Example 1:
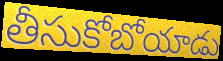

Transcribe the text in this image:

తీసుకోబోయాడు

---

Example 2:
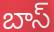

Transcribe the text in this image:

బాస్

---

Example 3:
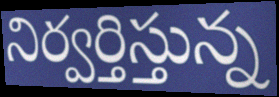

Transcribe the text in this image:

నిర్వర్తిస్తున్న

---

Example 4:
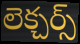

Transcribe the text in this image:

లెక్చర్స్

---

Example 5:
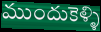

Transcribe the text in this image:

ముందుకెళ్ళి